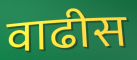
वाढीस